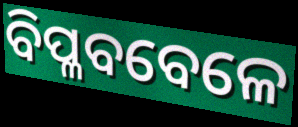
ବିପ୍ଳବବେଳେ